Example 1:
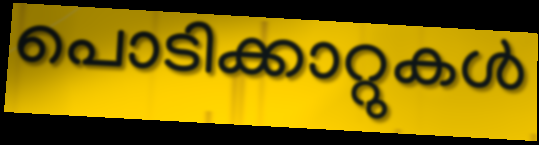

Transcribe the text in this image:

പൊടിക്കാറ്റുകൾ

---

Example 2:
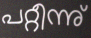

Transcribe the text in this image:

പറ്റീന്നു്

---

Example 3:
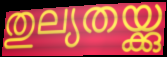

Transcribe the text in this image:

തുല്യതയ്ക്കു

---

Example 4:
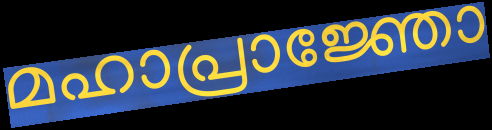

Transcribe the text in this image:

മഹാപ്രാജ്ഞോ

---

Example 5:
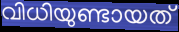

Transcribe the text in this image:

വിധിയുണ്ടായത്